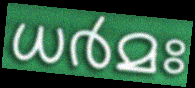
ധർമഃ